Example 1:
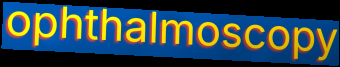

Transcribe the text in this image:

ophthalmoscopy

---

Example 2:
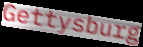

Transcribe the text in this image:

Gettysburg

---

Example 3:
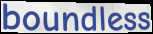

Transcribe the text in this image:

boundless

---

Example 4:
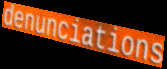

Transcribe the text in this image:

denunciations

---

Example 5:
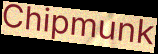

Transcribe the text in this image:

Chipmunk